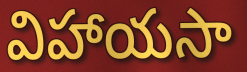
విహాయసా